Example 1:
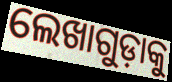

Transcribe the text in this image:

ଲେଖାଗୁଡ଼ାକୁ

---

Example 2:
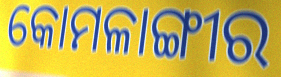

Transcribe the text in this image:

କୋମଳାଙ୍ଗୀର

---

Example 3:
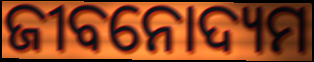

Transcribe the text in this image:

ଜୀବନୋଦ୍ୟମ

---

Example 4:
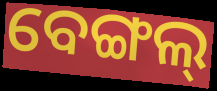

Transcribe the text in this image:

ବେଙ୍ଗଲ୍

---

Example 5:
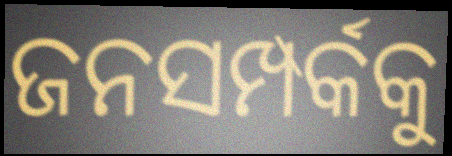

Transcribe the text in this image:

ଜନସମ୍ପର୍କକୁ